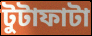
টুটাফাটা